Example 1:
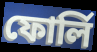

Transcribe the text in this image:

ফোর্লি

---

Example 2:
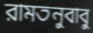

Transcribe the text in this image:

রামতনুবাবু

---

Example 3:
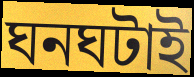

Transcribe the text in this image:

ঘনঘটাই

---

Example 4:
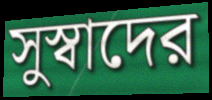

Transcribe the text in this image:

সুস্বাদের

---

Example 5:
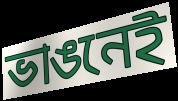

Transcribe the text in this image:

ভাঙনেই